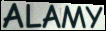
ALAMY